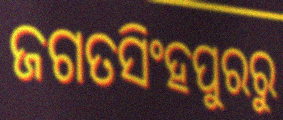
ଜଗତସିଂହପୁରରୁ